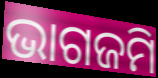
ଭାଗଜମି